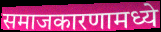
समाजकारणामध्ये